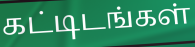
கட்டிடங்கள்